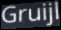
Gruijl